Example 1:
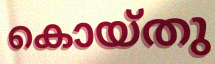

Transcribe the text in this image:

കൊയ്തു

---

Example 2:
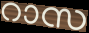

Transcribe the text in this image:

റാസ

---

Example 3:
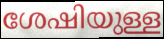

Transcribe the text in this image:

ശേഷിയുള്ള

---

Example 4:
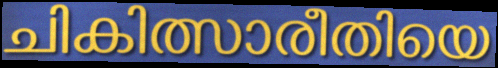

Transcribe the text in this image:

ചികിത്സാരീതിയെ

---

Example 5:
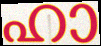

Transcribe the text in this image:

ഹാ